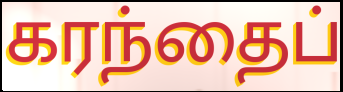
கரந்தைப்